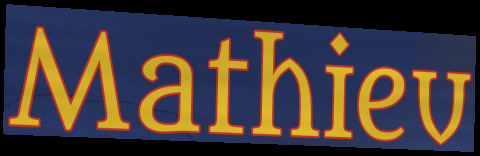
Mathieu